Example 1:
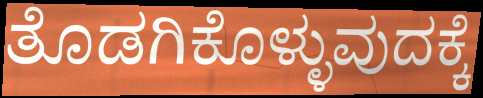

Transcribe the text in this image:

ತೊಡಗಿಕೊಳ್ಳುವುದಕ್ಕೆ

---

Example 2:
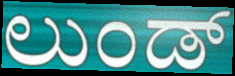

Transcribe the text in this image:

ಲುಂಡ್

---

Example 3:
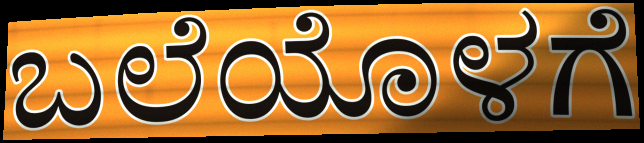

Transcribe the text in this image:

ಬಲೆಯೊಳಗೆ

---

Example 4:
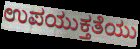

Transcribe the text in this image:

ಉಪಯುಕ್ತತೆಯು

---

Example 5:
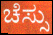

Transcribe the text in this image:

ಚೆಸ್ಸು